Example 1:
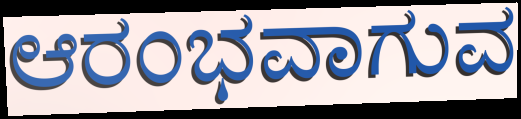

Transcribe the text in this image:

ಆರಂಭವಾಗುವ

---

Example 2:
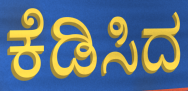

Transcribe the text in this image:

ಕೆಡಿಸಿದ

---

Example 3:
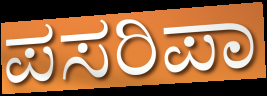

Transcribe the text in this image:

ಪಸರಿಪಾ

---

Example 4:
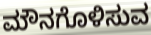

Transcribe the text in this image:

ಮೌನಗೊಳಿಸುವ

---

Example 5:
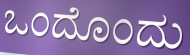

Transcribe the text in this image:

ಒಂದೊಂದು